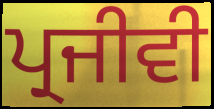
ਪ੍ਰਜੀਵੀ